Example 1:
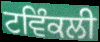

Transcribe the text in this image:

ਟਵਿੰਕਲੀ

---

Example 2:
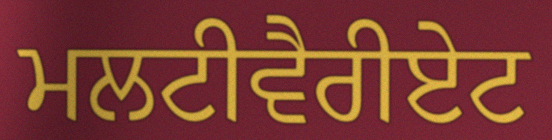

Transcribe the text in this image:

ਮਲਟੀਵੈਰੀਏਟ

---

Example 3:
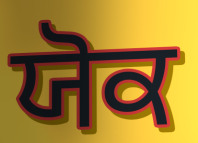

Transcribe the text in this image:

ਯੋਕ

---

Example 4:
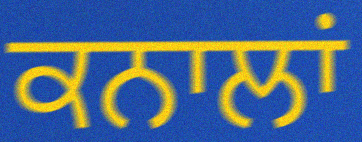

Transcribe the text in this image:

ਕਨਾਲਾਂ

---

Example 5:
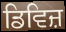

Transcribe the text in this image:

ਡਿਵਿਜ਼